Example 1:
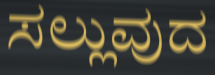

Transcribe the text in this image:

ಸಲ್ಲುವುದ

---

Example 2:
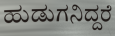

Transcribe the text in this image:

ಹುಡುಗನಿದ್ದರೆ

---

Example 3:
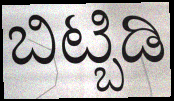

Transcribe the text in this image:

ಬಿಟ್ಬಿಡಿ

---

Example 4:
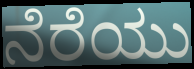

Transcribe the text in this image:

ನೆರೆಯು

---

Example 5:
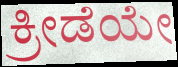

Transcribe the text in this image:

ಕ್ರೀಡೆಯೇ